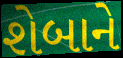
શેબાને